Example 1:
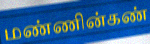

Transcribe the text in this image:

மண்ணின்கண்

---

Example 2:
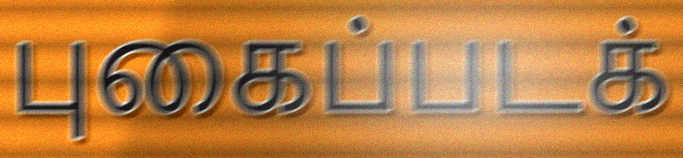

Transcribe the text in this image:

புகைப்படக்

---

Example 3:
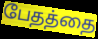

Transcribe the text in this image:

பேதத்தை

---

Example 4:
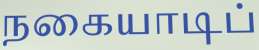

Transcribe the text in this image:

நகையாடிப்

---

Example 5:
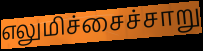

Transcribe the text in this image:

எலுமிச்சைச்சாறு